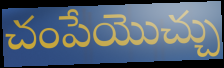
చంపేయొచ్చు